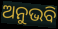
ଅନୁଭବି